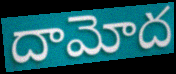
దామోద